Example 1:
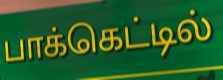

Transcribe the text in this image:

பாக்கெட்டில்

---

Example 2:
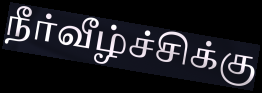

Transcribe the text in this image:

நீர்வீழ்ச்சிக்கு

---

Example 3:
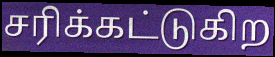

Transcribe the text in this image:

சரிக்கட்டுகிற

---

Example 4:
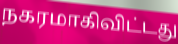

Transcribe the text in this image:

நகரமாகிவிட்டது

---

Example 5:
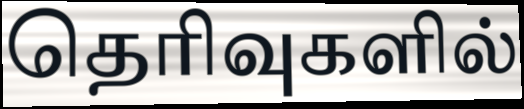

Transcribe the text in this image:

தெரிவுகளில்